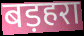
बड़हरा